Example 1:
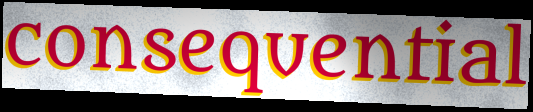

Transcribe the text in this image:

consequential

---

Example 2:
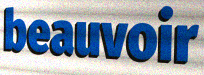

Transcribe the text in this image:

beauvoir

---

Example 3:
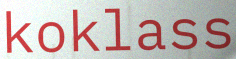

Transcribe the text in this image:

koklass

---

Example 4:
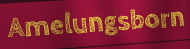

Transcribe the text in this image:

Amelungsborn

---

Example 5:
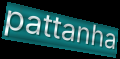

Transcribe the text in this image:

pattanha